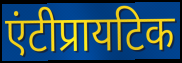
एंटीप्रायटिक